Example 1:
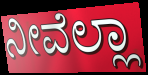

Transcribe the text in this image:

ನೀವೆಲ್ಲಾ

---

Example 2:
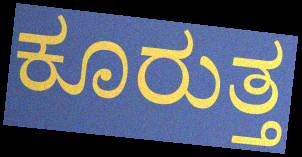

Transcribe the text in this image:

ಕೂರುತ್ತ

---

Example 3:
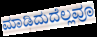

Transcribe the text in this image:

ಮಾಡಿದುದೆಲ್ಲವೂ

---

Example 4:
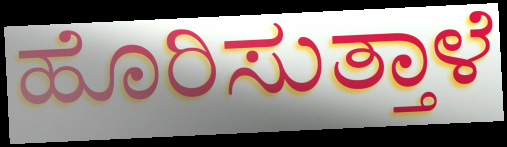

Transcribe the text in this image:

ಹೊರಿಸುತ್ತಾಳೆ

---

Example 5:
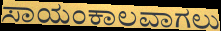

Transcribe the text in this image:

ಸಾಯಂಕಾಲವಾಗಲು